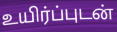
உயிர்ப்புடன்